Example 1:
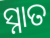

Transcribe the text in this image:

ସ୍ନାତ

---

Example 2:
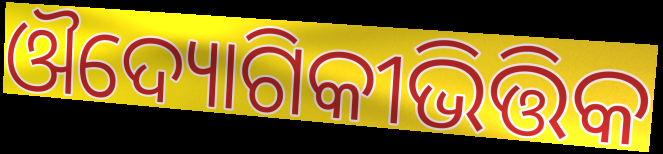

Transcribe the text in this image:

ଔଦ୍ୟୋଗିକୀଭିତ୍ତିକ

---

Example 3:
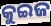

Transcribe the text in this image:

କୁଇଜ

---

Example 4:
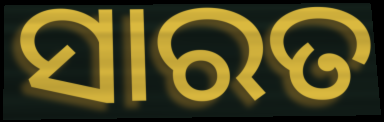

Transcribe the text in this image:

ସାରତ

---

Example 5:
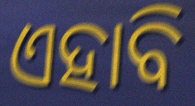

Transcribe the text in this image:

ଏହାବି